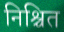
निश्चित